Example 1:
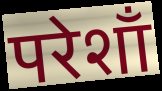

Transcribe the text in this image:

परेशाँ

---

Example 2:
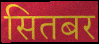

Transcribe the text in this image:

सितबर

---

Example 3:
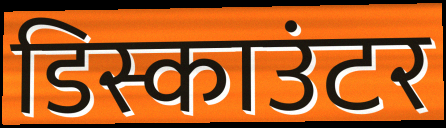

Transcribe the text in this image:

डिस्काउंटर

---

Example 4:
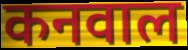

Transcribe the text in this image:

कनवाल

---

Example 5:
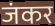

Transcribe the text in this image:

जंकर